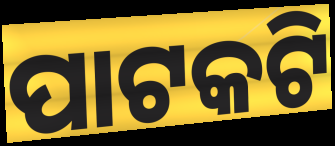
ପାଟକଟି